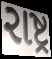
રાષ્ટ્ર